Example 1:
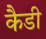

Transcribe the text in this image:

कैडी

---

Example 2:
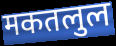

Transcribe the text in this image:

मकतलुल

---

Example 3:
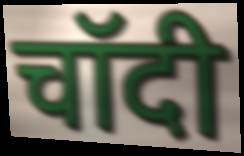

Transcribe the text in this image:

चॉदी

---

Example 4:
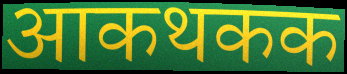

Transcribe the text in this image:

आकथकक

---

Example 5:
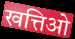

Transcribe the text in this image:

खत्तिओ